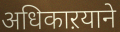
अधिकाऱयाने